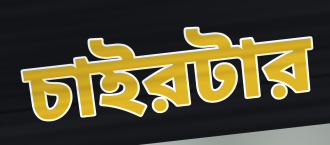
চাইরটার